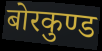
बोरकुण्ड